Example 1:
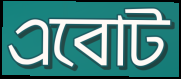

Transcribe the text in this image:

এবোট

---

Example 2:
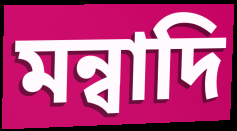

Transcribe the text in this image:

মন্বাদি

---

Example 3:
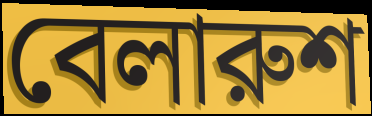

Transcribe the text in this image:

বেলারুশ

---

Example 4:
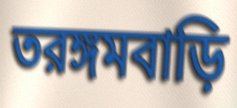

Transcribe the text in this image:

তরঙ্গমবাড়ি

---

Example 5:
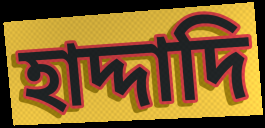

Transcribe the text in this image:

হাদ্দাদি